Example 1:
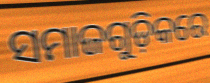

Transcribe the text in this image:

ସମାଜଗୁଡ଼ିକରେ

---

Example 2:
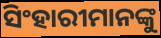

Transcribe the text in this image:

ସିଂହାରୀମାନଙ୍କୁ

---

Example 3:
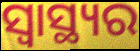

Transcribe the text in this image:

ସ୍ବାସ୍ଥ୍ୟର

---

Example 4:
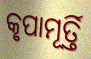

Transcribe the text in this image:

କୃପାମୂର୍ତ୍ତି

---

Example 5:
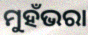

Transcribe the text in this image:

ମୁହଁଭରା